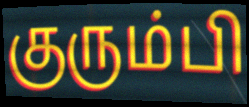
குரும்பி